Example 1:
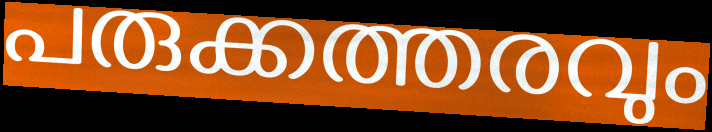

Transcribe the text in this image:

പരുക്കത്തരവും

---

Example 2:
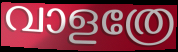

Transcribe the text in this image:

വാളത്രേ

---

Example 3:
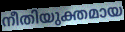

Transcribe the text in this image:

നീതിയുക്തമായ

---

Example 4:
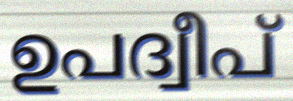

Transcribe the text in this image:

ഉപദ്വീപ്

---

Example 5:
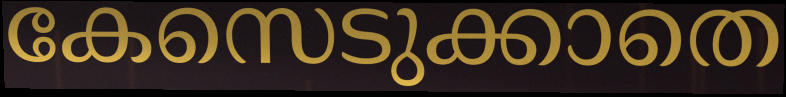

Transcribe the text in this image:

കേസെടുക്കാതെ